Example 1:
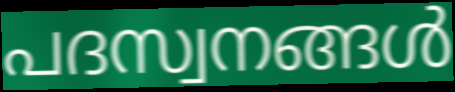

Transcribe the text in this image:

പദസ്വനങ്ങൾ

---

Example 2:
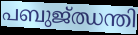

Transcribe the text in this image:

പബുജ്ഝന്തി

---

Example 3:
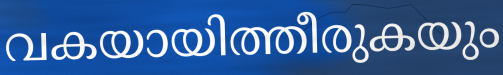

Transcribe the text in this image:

വകയായിത്തീരുകയും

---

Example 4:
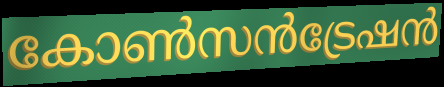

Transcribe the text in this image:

കോൺസൻട്രേഷൻ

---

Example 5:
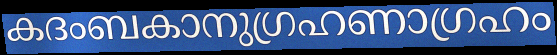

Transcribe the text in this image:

കദംബകാനുഗ്രഹണാഗ്രഹം